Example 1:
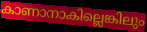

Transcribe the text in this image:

കാണാനാകില്ലെങ്കിലും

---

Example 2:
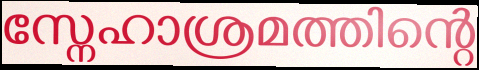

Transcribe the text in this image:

സ്നേഹാശ്രമത്തിന്റെ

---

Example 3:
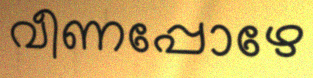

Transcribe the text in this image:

വീണപ്പോഴേ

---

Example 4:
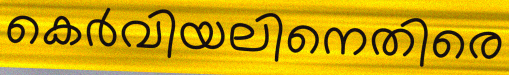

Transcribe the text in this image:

കെർവിയലിനെതിരെ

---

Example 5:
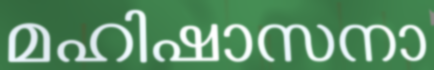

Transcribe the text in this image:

മഹിഷാസനാ